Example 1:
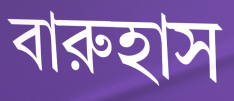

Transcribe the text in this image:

বারুহাস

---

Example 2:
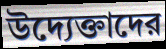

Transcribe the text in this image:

উদ্যেক্তাদের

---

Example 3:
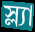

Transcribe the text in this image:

স্ল্যা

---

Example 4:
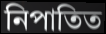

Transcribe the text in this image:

নিপাতিত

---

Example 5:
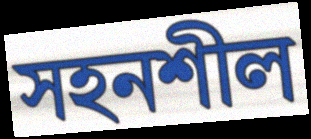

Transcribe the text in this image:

সহনশীল